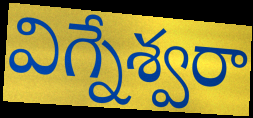
విగ్నేశ్వరా